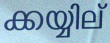
ക്കയ്യില്